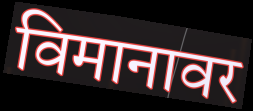
विमानावर